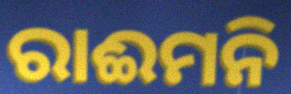
ରାଈମନି